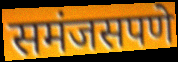
समंजसपणे